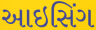
આઇસિંગ